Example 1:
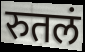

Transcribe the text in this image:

रुतलं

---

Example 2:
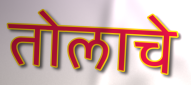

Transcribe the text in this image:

तोलाचे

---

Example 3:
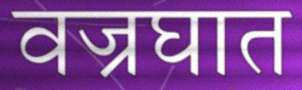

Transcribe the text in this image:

वज्रघात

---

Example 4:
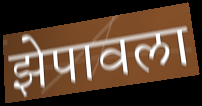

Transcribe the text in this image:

झेपावला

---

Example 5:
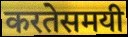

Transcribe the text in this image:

करतेसमयी